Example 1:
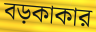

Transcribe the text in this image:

বড়কাকার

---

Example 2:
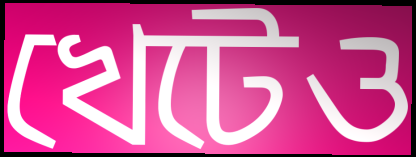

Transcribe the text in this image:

খেটেও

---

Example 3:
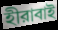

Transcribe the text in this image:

হীরাবাই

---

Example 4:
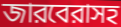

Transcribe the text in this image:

জারবেরাসহ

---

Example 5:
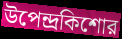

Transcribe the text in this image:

উপেন্দ্রকিশোর